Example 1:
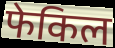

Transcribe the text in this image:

फेकिल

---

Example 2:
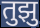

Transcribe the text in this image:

तुझु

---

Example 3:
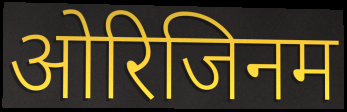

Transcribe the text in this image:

ओरिजिनम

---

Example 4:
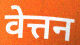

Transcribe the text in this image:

वेत्तन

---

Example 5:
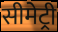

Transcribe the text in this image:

सीमेट्री